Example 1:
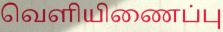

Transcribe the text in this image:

வெளியிணைப்பு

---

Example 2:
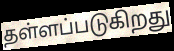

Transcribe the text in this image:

தள்ளப்படுகிறது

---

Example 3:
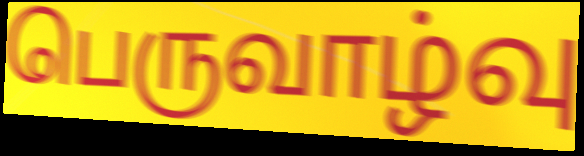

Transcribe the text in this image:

பெருவாழ்வு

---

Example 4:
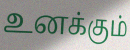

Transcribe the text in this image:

உனக்கும்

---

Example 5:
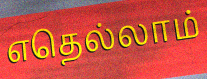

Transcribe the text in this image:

எதெல்லாம்